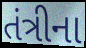
તંત્રીના